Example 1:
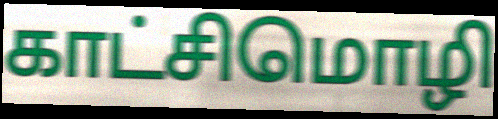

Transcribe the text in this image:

காட்சிமொழி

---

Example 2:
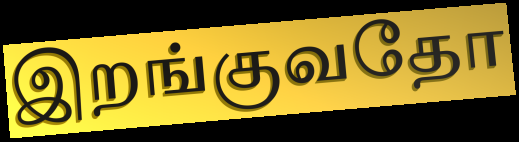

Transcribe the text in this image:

இறங்குவதோ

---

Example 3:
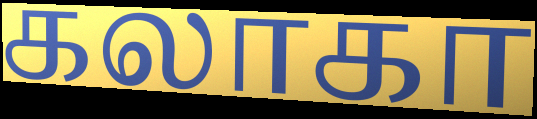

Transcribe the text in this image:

கலாகா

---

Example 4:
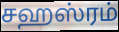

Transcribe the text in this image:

சஹஸ்ரம்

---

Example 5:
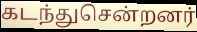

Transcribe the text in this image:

கடந்துசென்றனர்